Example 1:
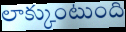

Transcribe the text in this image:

లాక్కుంటుంది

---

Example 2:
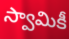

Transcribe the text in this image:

స్వామికీ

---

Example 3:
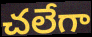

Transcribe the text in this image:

చలేగా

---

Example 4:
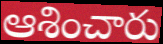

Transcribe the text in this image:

ఆశించారు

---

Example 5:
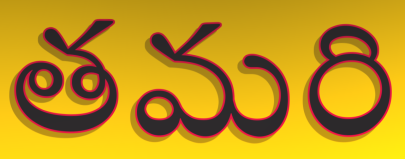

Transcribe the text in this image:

తమరి